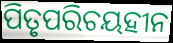
ପିତୃପରିଚୟହୀନ